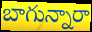
బాగున్నారా